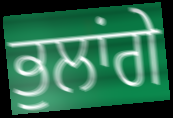
ਭੁਲਾਂਗੇ